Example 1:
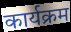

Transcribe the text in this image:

कार्यक्रम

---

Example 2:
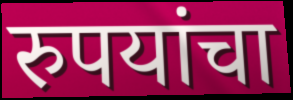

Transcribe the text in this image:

रुपयांचा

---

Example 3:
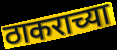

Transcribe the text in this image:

ठाकराच्या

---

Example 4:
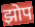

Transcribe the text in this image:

झोप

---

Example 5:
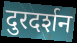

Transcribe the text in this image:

दुरदर्शन